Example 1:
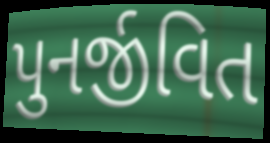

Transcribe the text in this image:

પુનર્જીવિત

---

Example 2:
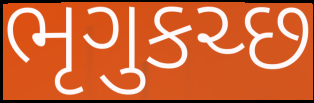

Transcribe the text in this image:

ભૃગુકચ્છ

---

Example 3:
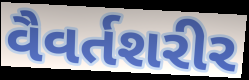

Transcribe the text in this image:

વૈવર્તશરીર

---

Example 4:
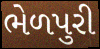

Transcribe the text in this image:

ભેળપુરી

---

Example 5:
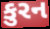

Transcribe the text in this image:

કુરન